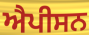
ਐਪੀਸਨ